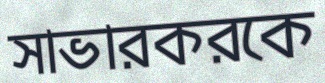
সাভারকরকে